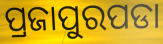
ପ୍ରଜାପୁରପଡା